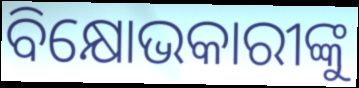
ବିକ୍ଷୋଭକାରୀଙ୍କୁ